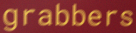
grabbers